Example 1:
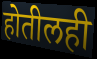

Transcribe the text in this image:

होतीलही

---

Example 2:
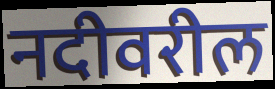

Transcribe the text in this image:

नदीवरील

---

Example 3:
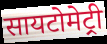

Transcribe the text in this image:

सायटोमेट्री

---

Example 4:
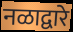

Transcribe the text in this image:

नळाद्वारे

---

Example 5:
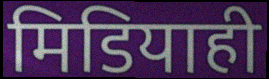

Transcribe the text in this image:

मिडियाही